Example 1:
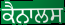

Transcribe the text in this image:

ਕੈਨਾਲਸ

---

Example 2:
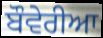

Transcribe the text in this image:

ਬੌਵੇਰੀਆ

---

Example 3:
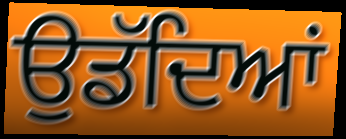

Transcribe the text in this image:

ਉਡੱਦਿਆਂ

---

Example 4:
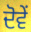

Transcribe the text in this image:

ਦੋਵੇਂ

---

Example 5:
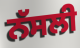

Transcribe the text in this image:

ਨੱਸਲੀ